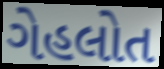
ગેહલોત